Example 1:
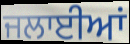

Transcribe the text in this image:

ਜਲਾਈਆਂ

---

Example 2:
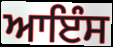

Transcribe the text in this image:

ਆਇੰਸ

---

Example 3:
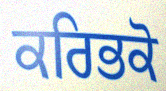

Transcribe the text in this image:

ਕਰਿਭਕੋ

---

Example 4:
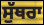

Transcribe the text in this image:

ਸੁੱਥਰਾ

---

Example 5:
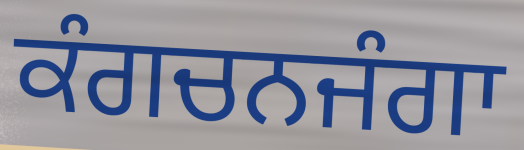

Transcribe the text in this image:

ਕੰਗਚਨਜੰਗਾ